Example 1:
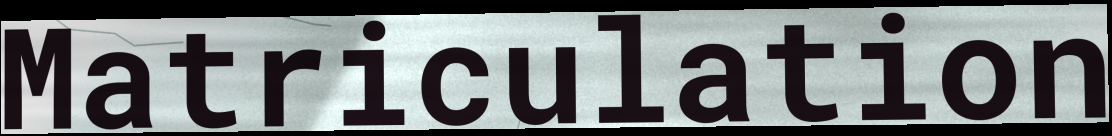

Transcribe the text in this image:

Matriculation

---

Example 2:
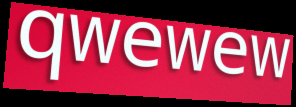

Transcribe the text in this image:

qwewew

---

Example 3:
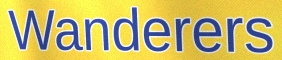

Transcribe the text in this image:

Wanderers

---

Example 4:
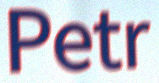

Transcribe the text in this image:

Petr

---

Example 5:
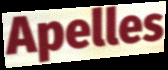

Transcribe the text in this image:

Apelles